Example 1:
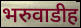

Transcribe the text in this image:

भरुवाडीह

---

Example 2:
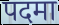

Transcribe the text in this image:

पदमा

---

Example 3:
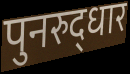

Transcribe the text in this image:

पुनरुद्धार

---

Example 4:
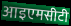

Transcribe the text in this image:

आइएमसीटी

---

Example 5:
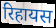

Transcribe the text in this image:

रिहायस